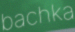
bachka